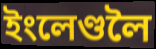
ইংলেণ্ডলৈ